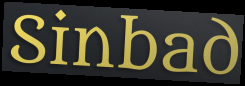
Sinbad